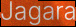
Jagara